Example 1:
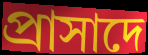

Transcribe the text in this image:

প্রাসাদে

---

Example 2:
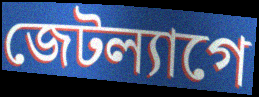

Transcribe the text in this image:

জেটল্যাগে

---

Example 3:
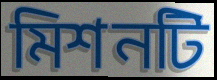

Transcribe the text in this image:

মিশনটি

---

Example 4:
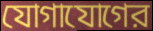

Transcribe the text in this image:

যোগাযোগের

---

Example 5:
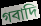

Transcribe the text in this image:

গবাদি